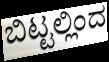
ಬಿಟ್ಟಲ್ಲಿಂದ